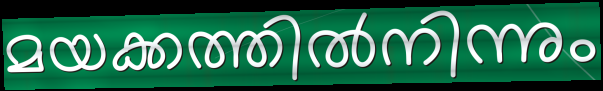
മയക്കത്തിൽനിന്നും